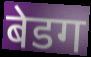
बेडग